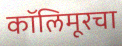
कॉलिमूरचा